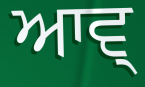
ਆਵ੍